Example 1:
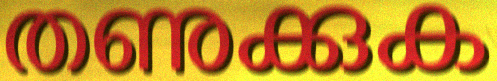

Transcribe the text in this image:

തണുക്കുക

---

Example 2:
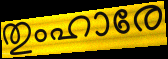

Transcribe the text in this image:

തുംഹാരേ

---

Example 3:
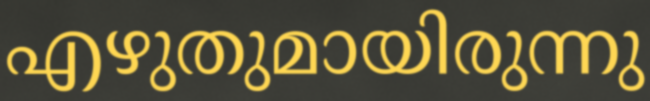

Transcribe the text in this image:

എഴുതുമായിരുന്നു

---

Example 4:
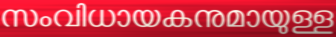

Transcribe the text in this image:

സംവിധായകനുമായുള്ള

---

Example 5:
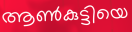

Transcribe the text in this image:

ആൺകുട്ടിയെ